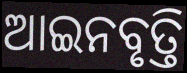
ଆଇନବୃତ୍ତି